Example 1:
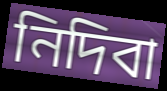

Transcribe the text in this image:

নিদিবা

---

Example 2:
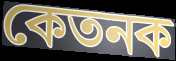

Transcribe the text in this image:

কেতনক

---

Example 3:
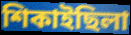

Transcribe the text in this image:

শিকাইছিলা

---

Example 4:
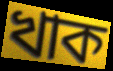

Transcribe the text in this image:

খাক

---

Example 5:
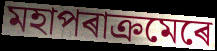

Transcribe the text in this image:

মহাপৰাক্ৰমেৰে